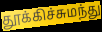
தூக்கிச்சுமந்து